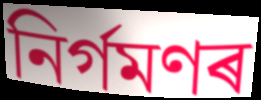
নিৰ্গমণৰ